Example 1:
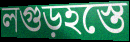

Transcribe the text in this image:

লগুড়হস্তে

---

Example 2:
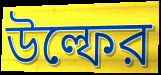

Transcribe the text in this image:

উল্ফের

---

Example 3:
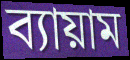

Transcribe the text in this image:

ব্যায়াম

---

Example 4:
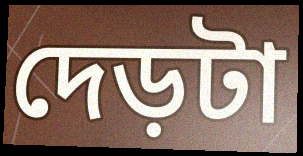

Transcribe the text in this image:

দেড়টা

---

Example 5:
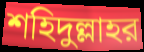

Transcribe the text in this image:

শহিদুল্লাহর